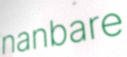
nanbare